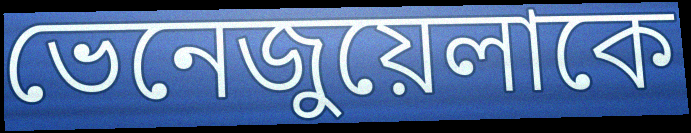
ভেনেজুয়েলাকে